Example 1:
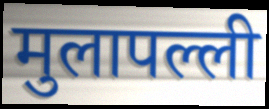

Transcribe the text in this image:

मुलापल्ली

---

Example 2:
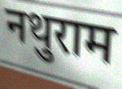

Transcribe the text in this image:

नथुराम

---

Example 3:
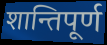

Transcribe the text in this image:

शान्तिपूर्ण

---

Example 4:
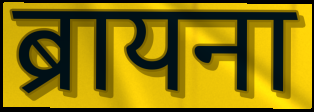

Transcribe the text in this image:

ब्रायना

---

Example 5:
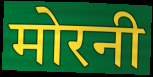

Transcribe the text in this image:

मोरनी